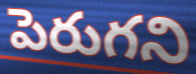
పెరుగని